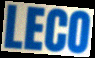
LECO